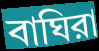
বাঘিরা